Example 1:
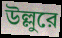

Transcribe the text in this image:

উল্লুরে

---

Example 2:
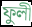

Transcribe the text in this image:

ফুলী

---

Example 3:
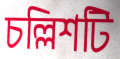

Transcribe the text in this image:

চল্লিশটি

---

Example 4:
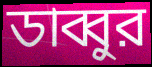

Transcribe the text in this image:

ডাব্বুর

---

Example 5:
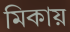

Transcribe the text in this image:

মিকায়